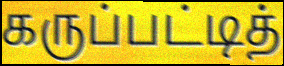
கருப்பட்டித்